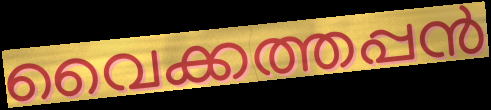
വൈക്കത്തപ്പൻ